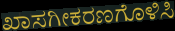
ಖಾಸಗೀಕರಣಗೊಳಿಸಿ